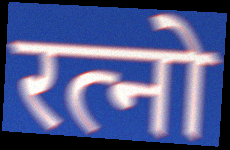
रत्नो